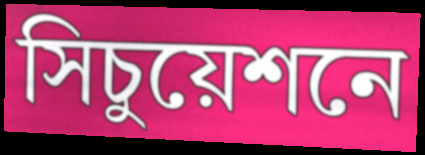
সিচুয়েশনে